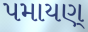
પમાયણ્